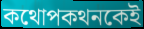
কথোপকথনকেই